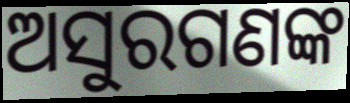
ଅସୁରଗଣଙ୍କ